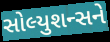
સોલ્યુશન્સને